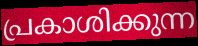
പ്രകാശിക്കുന്ന